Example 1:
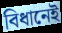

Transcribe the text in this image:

বিধানেই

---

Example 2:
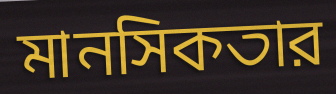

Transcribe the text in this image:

মানসিকতার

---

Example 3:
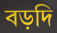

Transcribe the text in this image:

বড়দি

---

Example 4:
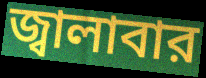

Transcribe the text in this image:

জ্বালাবার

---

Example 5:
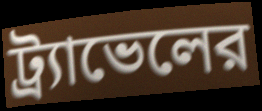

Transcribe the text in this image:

ট্র্যাভেলের